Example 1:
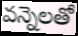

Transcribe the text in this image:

వన్నెలతో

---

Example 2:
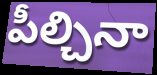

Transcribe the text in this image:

పీల్చినా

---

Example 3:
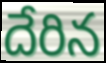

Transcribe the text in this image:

దేరిన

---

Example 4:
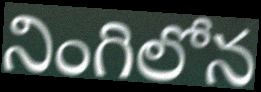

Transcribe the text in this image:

నింగిలోన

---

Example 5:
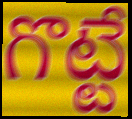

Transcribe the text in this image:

గొట్టే